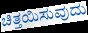
ಚಿತ್ತಯಿಸುವುದು